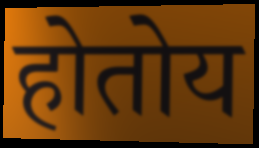
होतोय